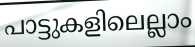
പാട്ടുകളിലെല്ലാം